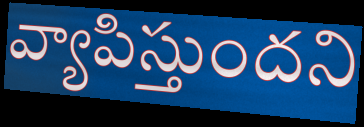
వ్యాపిస్తుందని